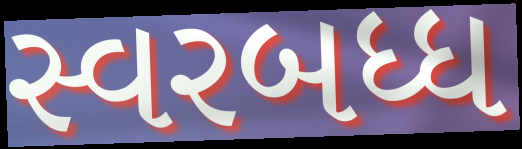
સ્વરબધ્ધ